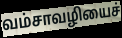
வம்சாவழியைச்